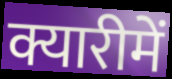
क्यारीमें